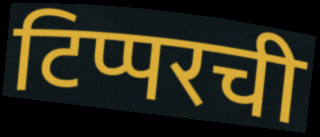
टिप्परची